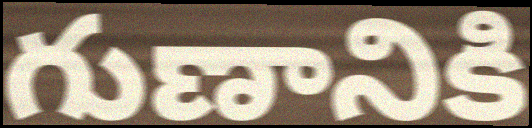
గుణానికి